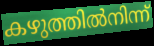
കഴുത്തിൽനിന്ന്